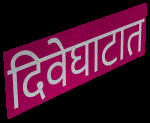
दिवेघाटात